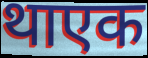
थाएक